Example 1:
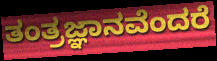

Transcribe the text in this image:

ತಂತ್ರಜ್ಞಾನವೆಂದರೆ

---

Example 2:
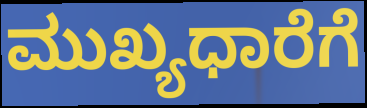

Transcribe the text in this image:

ಮುಖ್ಯಧಾರೆಗೆ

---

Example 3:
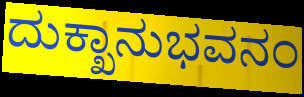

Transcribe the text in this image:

ದುಕ್ಖಾನುಭವನಂ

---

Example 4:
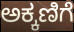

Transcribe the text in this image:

ಅಕ್ಕಣಿಗೆ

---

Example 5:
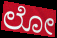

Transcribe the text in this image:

ಲೋ